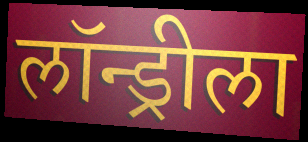
लॉन्ड्रीला